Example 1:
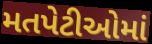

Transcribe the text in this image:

મતપેટીઓમાં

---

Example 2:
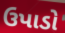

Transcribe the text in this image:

ઉપાડો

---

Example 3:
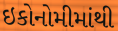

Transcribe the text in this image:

ઇકોનોમીમાંથી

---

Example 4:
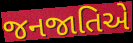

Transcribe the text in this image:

જનજાતિએ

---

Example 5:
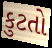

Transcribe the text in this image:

કુટતો